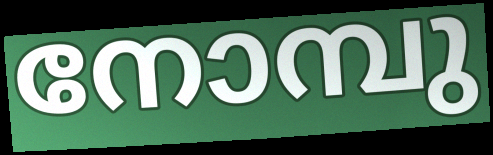
നോമ്പു